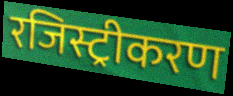
रजिस्ट्रीकरण